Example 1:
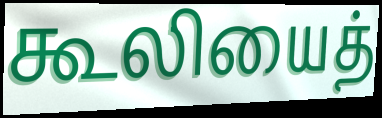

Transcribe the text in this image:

கூலியைத்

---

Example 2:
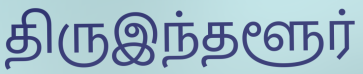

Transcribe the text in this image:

திருஇந்தளூர்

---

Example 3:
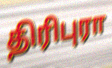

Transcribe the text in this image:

திரிபுரா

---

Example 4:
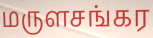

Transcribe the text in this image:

மருளசங்கர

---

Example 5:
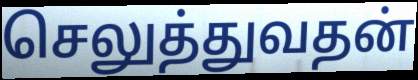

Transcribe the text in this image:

செலுத்துவதன்